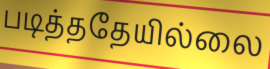
படித்ததேயில்லை